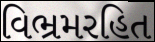
વિભ્રમરહિત